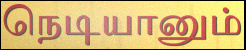
நெடியானும்